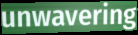
unwavering